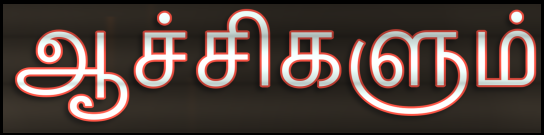
ஆச்சிகளும்